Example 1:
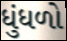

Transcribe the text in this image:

ધુંધળો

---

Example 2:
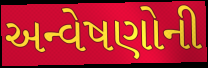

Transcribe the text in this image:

અન્વેષણોની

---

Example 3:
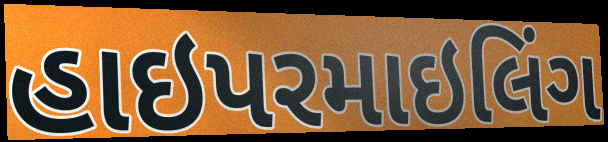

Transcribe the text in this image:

હાઇપરમાઇલિંગ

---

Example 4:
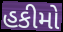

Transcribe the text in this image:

હકીમો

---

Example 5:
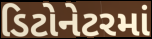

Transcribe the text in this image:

ડિટોનેટરમાં